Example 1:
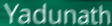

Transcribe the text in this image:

Yadunath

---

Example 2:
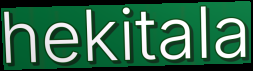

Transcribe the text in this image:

hekitala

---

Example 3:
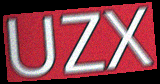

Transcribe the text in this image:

UZX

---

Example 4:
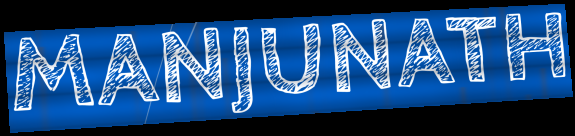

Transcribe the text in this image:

MANJUNATH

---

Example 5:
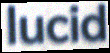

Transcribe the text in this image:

lucid